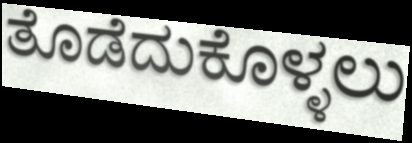
ತೊಡೆದುಕೊಳ್ಳಲು